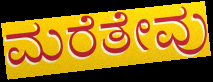
ಮರೆತೇವು